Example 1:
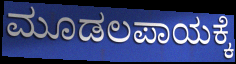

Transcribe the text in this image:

ಮೂಡಲಪಾಯಕ್ಕೆ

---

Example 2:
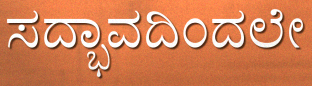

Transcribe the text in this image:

ಸದ್ಭಾವದಿಂದಲೇ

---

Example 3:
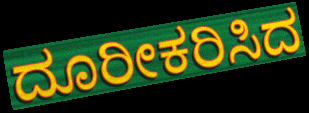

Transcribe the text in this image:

ದೂರೀಕರಿಸಿದ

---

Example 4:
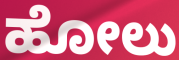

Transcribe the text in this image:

ಹೋಲು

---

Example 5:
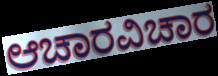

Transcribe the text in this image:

ಆಚಾರವಿಚಾರ